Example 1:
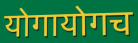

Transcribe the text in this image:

योगायोगच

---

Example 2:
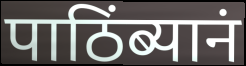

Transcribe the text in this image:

पाठिंब्यानं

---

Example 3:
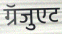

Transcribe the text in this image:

ग्रॅजुएट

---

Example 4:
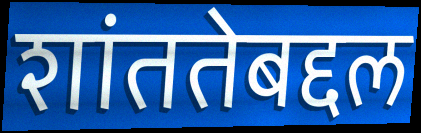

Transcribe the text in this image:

शांततेबद्दल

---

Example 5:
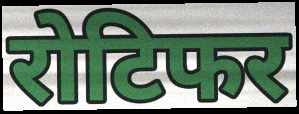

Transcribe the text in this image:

रोटिफर